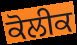
ਕੋਲੀਕ